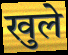
खुले